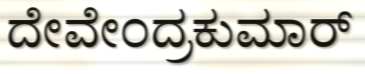
ದೇವೇಂದ್ರಕುಮಾರ್